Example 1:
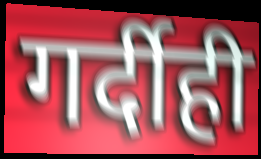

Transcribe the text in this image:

गर्दीही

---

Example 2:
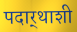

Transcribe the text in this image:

पदार्थाशी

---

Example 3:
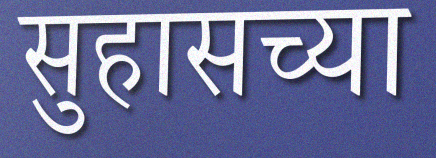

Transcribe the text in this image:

सुहासच्या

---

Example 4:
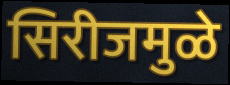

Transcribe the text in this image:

सिरीजमुळे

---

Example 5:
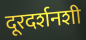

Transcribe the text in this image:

दूरदर्शनशी